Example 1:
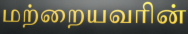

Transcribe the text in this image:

மற்றையவரின்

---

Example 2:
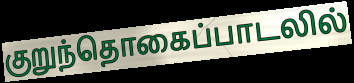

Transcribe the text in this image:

குறுந்தொகைப்பாடலில்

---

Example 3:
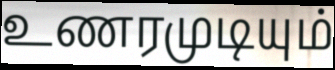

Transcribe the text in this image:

உணரமுடியும்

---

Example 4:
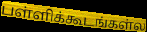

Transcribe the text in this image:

பள்ளிக்கூடங்கள்ல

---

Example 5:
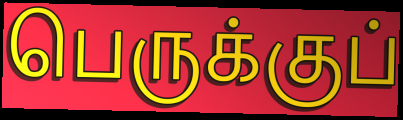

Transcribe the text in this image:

பெருக்குப்